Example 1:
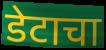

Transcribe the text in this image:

डेटाचा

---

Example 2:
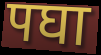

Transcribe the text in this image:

पघा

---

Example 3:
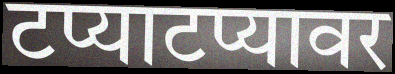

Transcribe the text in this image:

टप्याटप्यावर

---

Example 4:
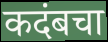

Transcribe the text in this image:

कदंबचा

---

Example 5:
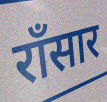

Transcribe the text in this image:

राँसार